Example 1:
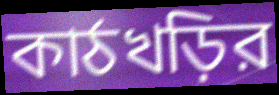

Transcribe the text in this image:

কাঠখড়ির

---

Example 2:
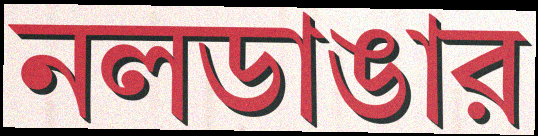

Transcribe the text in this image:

নলডাঙার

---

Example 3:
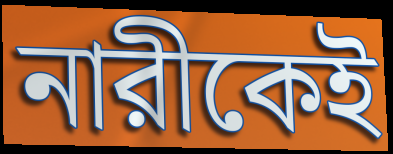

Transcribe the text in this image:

নারীকেই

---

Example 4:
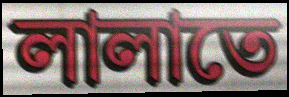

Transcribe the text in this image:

লালাতে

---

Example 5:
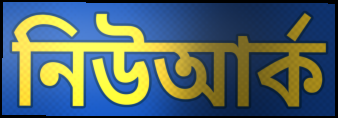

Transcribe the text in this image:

নিউআর্ক